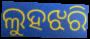
ଲୁହଝରି